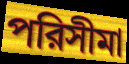
পরিসীমা